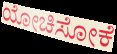
ಯೋಚಿಸೋಕೆ